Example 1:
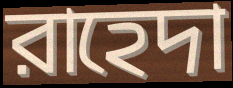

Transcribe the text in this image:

রাহেদা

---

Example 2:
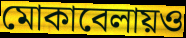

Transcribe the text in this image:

মোকাবেলায়ও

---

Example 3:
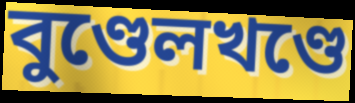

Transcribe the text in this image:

বুণ্ডেলখণ্ডে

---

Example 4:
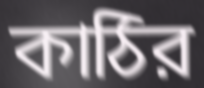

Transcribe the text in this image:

কাঠির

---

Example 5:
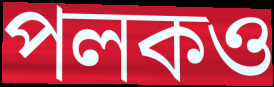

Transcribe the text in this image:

পলকও